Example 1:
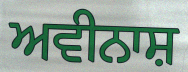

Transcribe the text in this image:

ਅਵੀਨਾਸ਼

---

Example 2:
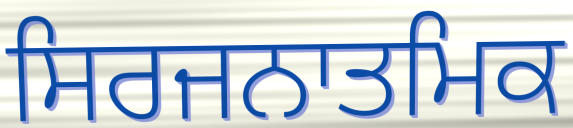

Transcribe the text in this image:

ਸਿਰਜਨਾਤਮਿਕ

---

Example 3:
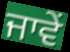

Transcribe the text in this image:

ਜਾਵੇਂ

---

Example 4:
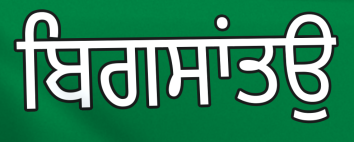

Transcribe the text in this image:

ਬਿਗਸਾਂਤਉ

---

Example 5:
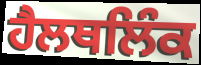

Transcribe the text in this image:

ਹੈਲਥਲਿੰਕ